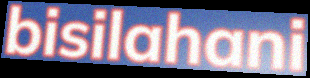
bisilahani